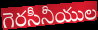
గెరసీనీయుల